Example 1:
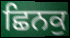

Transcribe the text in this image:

ਛਿਨਕੁ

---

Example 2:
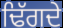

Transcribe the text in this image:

ਢਿੱਗਦੇ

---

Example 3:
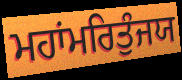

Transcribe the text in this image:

ਮਹਾਂਮਰਿਤੁੰਜਯ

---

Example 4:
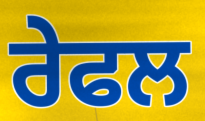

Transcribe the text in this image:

ਰੇਫਲ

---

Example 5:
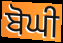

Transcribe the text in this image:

ਬੋਘੀ